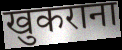
खुकराना